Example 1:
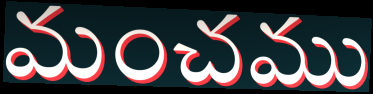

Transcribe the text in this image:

మంచము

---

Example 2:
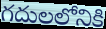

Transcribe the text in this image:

గదులలోనికి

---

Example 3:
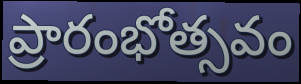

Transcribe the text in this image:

ప్రారంభోత్సవం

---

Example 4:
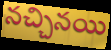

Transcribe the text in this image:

నచ్చినయి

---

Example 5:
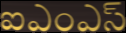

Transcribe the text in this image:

ఐఎంఎస్